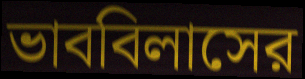
ভাববিলাসের